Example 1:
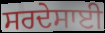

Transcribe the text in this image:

ਸਰਦੇਸਾਈ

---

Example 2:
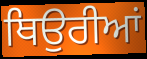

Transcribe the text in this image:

ਥਿਉਰੀਆਂ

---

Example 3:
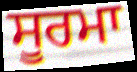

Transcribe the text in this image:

ਸੂਰਮਾ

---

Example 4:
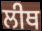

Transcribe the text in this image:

ਲੀਥ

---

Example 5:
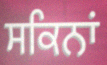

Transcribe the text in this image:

ਸਕਿਨਾਂ